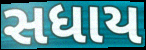
સધાય